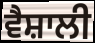
ਵੈਸ਼ਾਲੀ